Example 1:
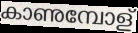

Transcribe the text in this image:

കാണുമ്പോള്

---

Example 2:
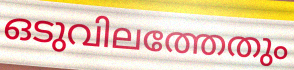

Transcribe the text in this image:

ഒടുവിലത്തേതും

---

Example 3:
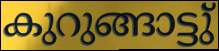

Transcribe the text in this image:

കുറുങ്ങാട്ടു്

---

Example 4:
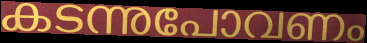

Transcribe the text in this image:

കടന്നുപോവണം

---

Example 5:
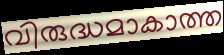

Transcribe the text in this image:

വിരുദ്ധമാകാത്ത